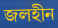
জলহীন